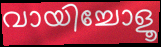
വായിച്ചോളൂ